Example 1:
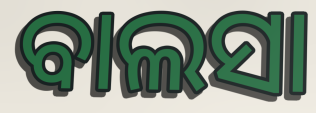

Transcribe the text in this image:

ବାଲସା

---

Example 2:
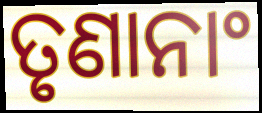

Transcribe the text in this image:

ତୃଣାନାଂ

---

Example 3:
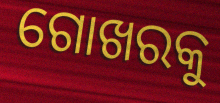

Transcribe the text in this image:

ଗୋଖରକୁ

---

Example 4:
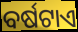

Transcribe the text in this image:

ବର୍ଷଟାଏ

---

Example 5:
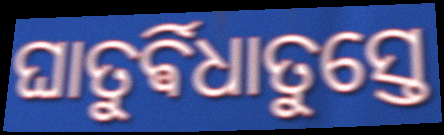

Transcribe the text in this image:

ଘାତୁର୍ଵିଧାତୁସ୍ତେ